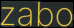
zabo